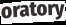
oratory